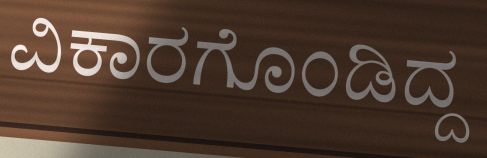
ವಿಕಾರಗೊಂಡಿದ್ದ